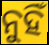
ନୁହିଁ